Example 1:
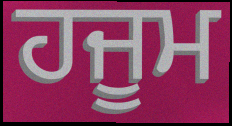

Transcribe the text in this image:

ਹਜੂਮ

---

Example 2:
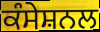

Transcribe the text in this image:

ਕੰਸੇਸ਼ਨਲ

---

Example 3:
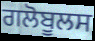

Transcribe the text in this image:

ਗਲੋਬੂਲਸ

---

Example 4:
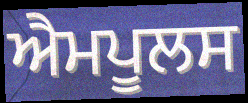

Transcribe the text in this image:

ਐਮਪੂਲਸ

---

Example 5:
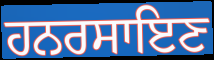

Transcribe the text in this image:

ਹਨਰਸਾਇਣ